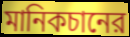
মানিকচানের